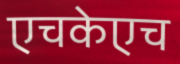
एचकेएच